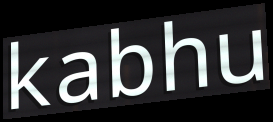
kabhu